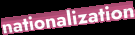
nationalization